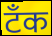
टॅंक